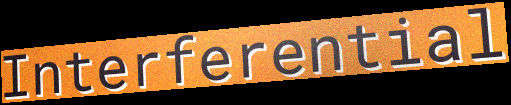
Interferential